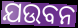
ଯଉବନ